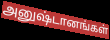
அனுஷ்டானங்கள்